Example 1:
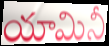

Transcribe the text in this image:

యామినీ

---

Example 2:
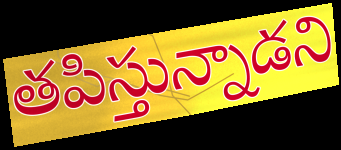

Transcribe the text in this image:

తపిస్తున్నాడని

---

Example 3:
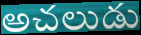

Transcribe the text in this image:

అచలుడు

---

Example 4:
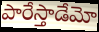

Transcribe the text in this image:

పారేస్తాడేమో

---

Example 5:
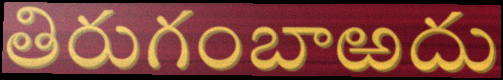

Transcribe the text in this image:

తిరుగంబాఱదు